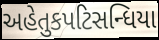
અહેતુકપટિસન્ધિયા